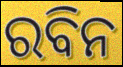
ରବିନ